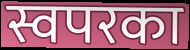
स्वपरका